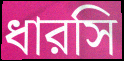
ধারসি